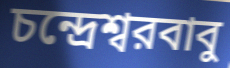
চন্দ্রেশ্বরবাবু